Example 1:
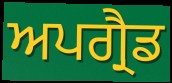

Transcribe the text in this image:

ਅਪਗ੍ਰੈਡ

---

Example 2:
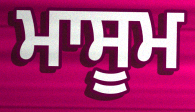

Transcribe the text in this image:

ਮਾਸੂਮ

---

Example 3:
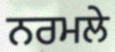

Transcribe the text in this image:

ਨਰਮਲੇ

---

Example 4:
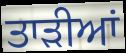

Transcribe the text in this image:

ਤਾੜੀਆਂ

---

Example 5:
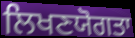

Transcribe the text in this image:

ਲਿਖਣਯੋਗਤਾ